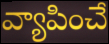
వ్యాపించే